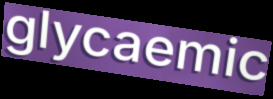
glycaemic